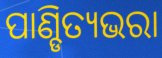
ପାଣ୍ଡିତ୍ୟଭରା